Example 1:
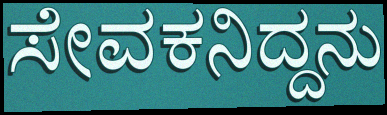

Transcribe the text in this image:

ಸೇವಕನಿದ್ದನು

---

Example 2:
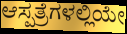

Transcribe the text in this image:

ಆಸ್ಪತ್ರೆಗಳಲ್ಲಿಯೇ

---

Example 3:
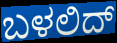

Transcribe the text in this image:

ಬಳಲಿದ್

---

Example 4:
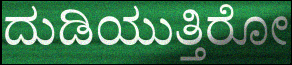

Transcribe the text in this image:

ದುಡಿಯುತ್ತಿರೋ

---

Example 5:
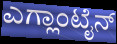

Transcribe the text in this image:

ಎಗ್ಲಾಂಟೈನ್